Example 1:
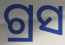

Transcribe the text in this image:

ଗ୍ରସ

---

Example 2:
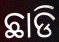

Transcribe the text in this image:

ଛାଡି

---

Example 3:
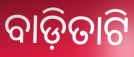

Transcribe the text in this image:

ବାଡ଼ିତାଟି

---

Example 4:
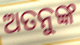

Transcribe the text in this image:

ଅତନୁଙ୍କ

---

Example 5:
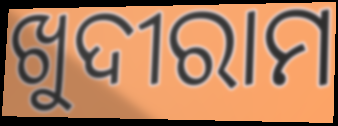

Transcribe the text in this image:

ଖୁଦୀରାମ